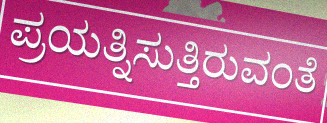
ಪ್ರಯತ್ನಿಸುತ್ತಿರುವಂತೆ